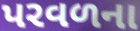
પરવળના